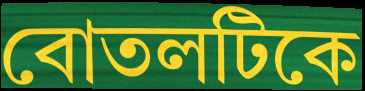
বোতলটিকে